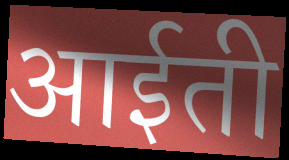
आईती